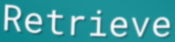
Retrieve